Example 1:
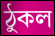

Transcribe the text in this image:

ঠুকল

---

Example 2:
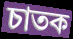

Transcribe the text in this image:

চাতক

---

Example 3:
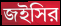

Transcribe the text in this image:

জইসির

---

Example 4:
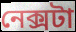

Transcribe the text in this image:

নেক্সটা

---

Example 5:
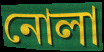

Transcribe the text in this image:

নোলা